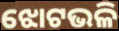
ଝୋଟଭଳି